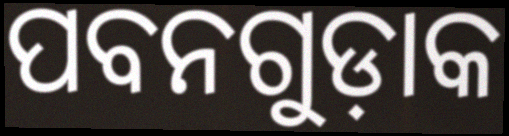
ପବନଗୁଡ଼ାକ